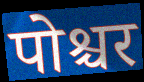
पोश्चर